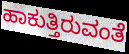
ಹಾಕುತ್ತಿರುವಂತೆ